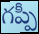
గప్పీ